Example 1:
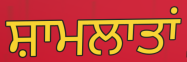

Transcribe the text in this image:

ਸ਼ਾਮਲਾਤਾਂ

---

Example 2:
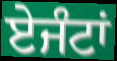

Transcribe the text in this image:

ਏਜੰਟਾਂ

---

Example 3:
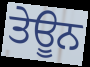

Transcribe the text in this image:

ਤੇਊਨ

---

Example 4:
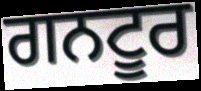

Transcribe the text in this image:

ਗਨਟੂਰ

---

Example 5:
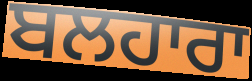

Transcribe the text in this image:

ਬਲਹਾਰਾ